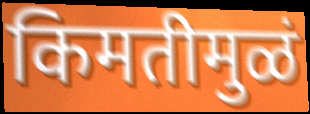
किमतीमुळं